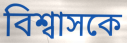
বিশ্বাসকে